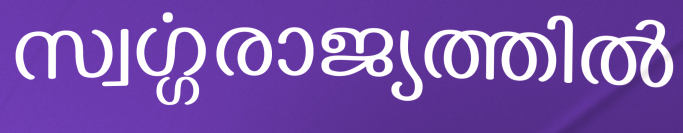
സ്വൎഗ്ഗരാജ്യത്തിൽ